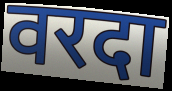
वरदा